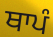
ਥਾਪੰ